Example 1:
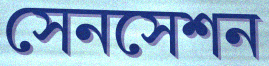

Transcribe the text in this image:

সেনসেশন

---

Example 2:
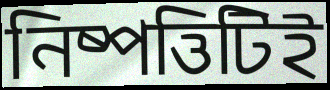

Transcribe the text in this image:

নিষ্পত্তিটিই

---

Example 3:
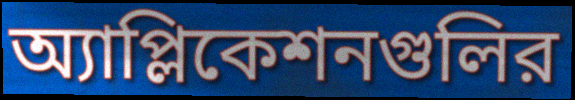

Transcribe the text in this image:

অ্যাপ্লিকেশনগুলির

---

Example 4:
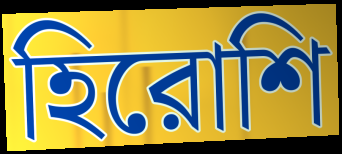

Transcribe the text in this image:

হিরোশি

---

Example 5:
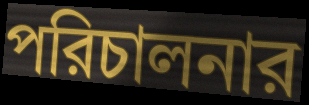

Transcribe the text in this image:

পরিচালনার